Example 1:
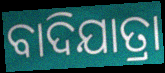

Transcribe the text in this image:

ବାଦିଯାତ୍ରା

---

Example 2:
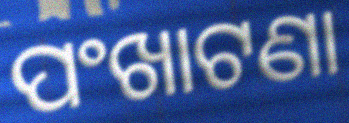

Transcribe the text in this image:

ପଂଖାଟଣା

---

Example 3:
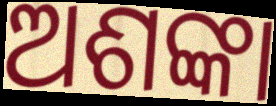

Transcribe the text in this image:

ଅଶଙ୍କା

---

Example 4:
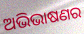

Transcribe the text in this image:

ଅଭିଭାଷଣର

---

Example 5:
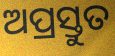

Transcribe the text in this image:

ଅପ୍ରସ୍ତୁତ